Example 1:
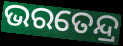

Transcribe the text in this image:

ଭରତେନ୍ଦ୍ର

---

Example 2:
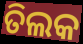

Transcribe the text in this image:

ତିଲକ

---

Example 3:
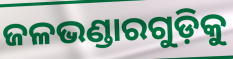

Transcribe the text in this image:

ଜଳଭଣ୍ଡାରଗୁଡ଼ିକୁ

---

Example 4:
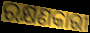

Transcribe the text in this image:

ରକ୍ଷଣକାରୀ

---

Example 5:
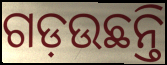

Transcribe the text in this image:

ଗଡ଼ଉଛନ୍ତି